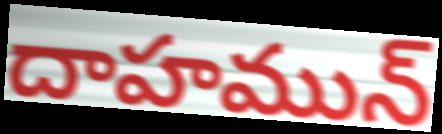
దాహమున్